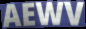
AEWV